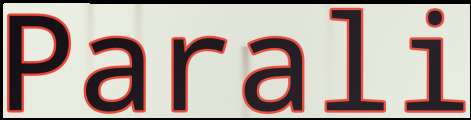
Parali